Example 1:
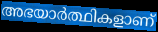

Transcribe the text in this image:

അഭയാർത്ഥികളാണ്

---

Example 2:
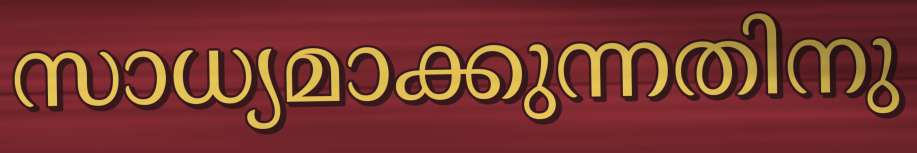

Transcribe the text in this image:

സാധ്യമാക്കുന്നതിനു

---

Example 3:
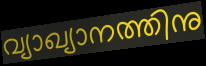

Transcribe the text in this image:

വ്യാഖ്യാനത്തിനു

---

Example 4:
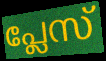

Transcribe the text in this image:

പ്ലേസ്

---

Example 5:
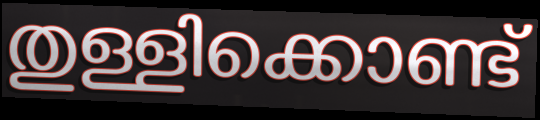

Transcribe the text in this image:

തുള്ളിക്കൊണ്ട്